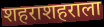
शहराशहराला